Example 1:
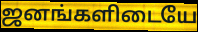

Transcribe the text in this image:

ஜனங்களிடையே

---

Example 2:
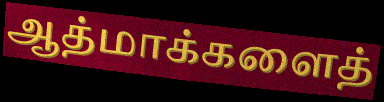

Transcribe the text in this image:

ஆத்மாக்களைத்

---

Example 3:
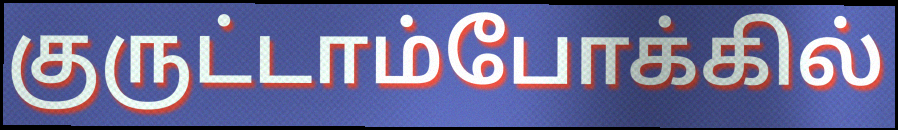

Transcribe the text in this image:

குருட்டாம்போக்கில்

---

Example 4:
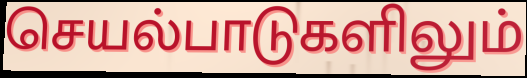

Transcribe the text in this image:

செயல்பாடுகளிலும்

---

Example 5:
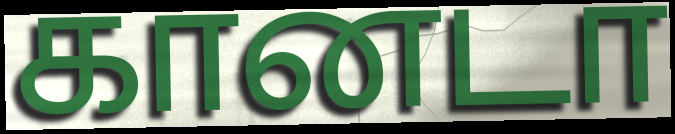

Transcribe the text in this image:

கானடா